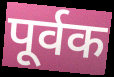
पूर्वक